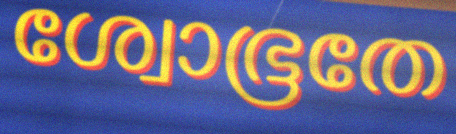
ശ്വോഭൂതേ